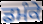
ਡਮੰਕੇ